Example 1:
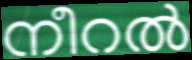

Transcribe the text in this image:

നീറൽ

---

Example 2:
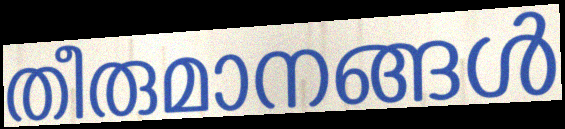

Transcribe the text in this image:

തീരുമാനങ്ങൾ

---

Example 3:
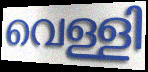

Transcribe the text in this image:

വെള്ളി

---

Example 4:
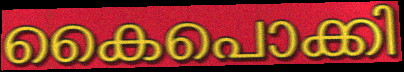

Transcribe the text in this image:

കൈപൊക്കി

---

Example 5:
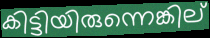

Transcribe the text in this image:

കിട്ടിയിരുന്നെങ്കില്